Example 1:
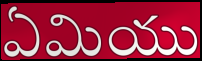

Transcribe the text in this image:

ఏమియు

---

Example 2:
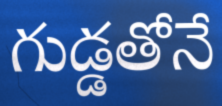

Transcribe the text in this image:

గుడ్డతోనే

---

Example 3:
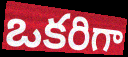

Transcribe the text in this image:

ఒకరిగా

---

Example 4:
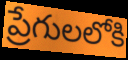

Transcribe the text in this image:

ప్రేగులలోకి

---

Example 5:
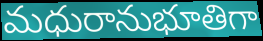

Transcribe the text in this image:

మధురానుభూతిగా